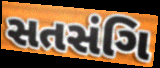
સતસંગિ